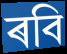
ৰবি